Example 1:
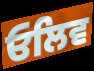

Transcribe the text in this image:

ਓਲਿਵ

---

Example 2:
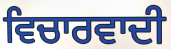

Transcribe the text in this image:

ਵਿਚਾਰਵਾਦੀ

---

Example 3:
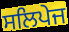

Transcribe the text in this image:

ਸਲਿਪੇਜ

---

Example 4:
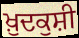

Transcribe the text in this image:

ਖ਼ੁਦਕੁਸ਼ੀ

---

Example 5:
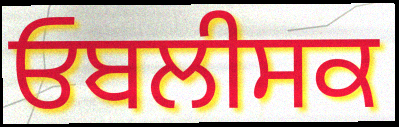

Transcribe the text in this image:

ਓਬਲੀਸਕ